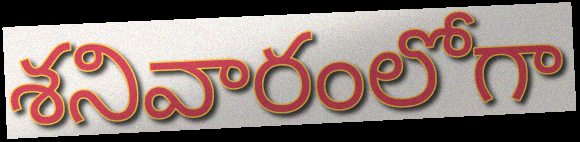
శనివారంలోగా